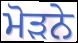
ਮੋੜਨੇ